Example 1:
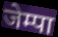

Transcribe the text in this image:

जेम्पा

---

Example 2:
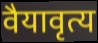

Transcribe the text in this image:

वैयावृत्य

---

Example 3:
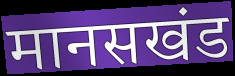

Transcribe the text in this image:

मानसखंड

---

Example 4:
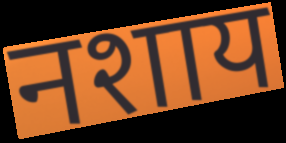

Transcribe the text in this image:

नशाय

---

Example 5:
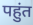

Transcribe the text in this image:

पहुंत